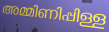
അമ്മിണിപ്പിള്ള